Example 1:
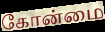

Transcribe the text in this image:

கோன்மை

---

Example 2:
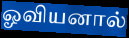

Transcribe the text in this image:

ஓவியனால்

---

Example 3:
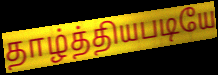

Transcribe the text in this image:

தாழ்த்தியபடியே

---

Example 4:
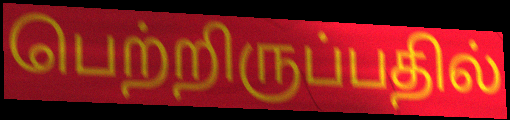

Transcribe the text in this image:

பெற்றிருப்பதில்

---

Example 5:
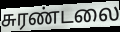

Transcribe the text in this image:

சுரண்டலை